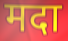
मदा